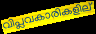
വിപ്ലവകാരികളില്